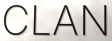
CLAN